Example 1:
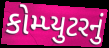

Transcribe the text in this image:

કોમ્પ્યુટરનું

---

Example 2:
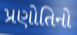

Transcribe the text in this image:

પ્રણોતિનો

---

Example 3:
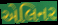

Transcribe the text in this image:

એલિનર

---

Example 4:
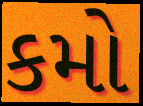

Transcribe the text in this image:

કમો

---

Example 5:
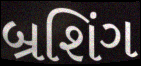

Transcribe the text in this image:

બ્રશિંગ